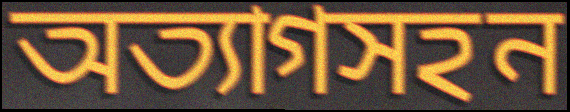
অত্যাগসহন